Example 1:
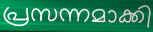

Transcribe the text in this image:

പ്രസന്നമാക്കി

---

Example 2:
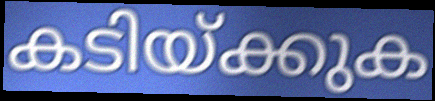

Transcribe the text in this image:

കടിയ്ക്കുക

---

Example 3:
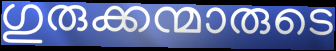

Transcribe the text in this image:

ഗുരുക്കന്മാരുടെ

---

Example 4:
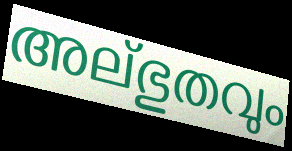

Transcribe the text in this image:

അല്ഭുതവും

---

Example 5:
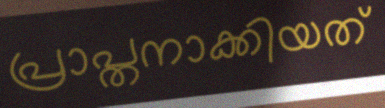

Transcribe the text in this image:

പ്രാപ്തനാക്കിയത്